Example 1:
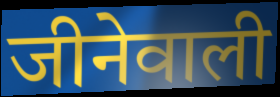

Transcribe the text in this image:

जीनेवाली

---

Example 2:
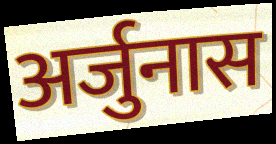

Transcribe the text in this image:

अर्जुनास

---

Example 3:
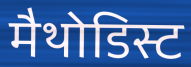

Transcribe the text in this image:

मैथोडिस्ट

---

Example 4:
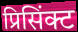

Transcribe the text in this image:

प्रिसिंक्ट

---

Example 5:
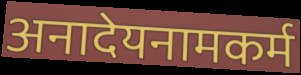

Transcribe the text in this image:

अनादेयनामकर्म